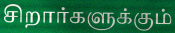
சிறார்களுக்கும்